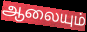
ஆலையும்